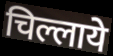
चिल्लाये